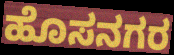
ಹೊಸನಗರ